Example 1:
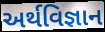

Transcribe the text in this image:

અર્થવિજ્ઞાન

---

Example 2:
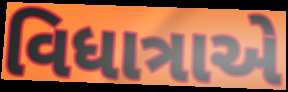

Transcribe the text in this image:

વિધાત્રાએ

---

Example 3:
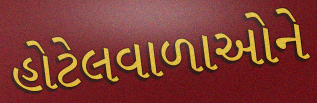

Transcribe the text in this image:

હોટેલવાળાઓને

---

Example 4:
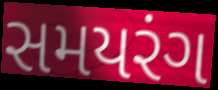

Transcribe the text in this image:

સમયરંગ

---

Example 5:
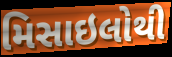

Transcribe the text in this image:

મિસાઇલોથી